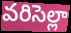
వరిసెల్లా